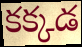
కక్కడ